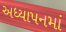
અધ્યાપનમાં